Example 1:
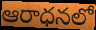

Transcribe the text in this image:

ఆరాధనలో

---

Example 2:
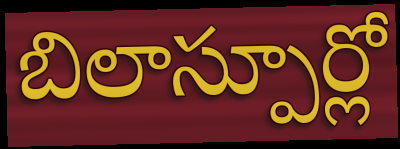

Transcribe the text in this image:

బిలాస్పూర్లో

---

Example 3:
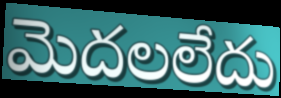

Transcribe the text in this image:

మెదలలేదు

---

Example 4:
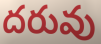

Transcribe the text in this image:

దరువు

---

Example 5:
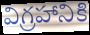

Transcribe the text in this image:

విగ్రహానికి